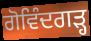
ਗੋਵਿੰਦਗੜ੍ਹ